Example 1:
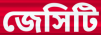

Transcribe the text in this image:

জেসিটি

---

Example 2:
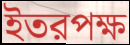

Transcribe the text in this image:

ইতরপক্ষ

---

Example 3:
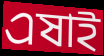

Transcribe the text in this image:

এষাই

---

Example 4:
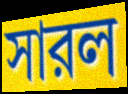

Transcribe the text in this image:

সারল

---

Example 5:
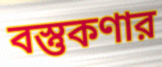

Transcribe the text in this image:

বস্তুকণার